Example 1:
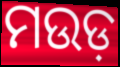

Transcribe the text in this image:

ମଉଡ଼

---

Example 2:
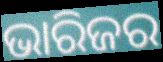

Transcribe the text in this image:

ଭାରିଜର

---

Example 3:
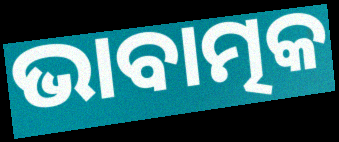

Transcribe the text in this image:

ଭାବାତ୍ମକ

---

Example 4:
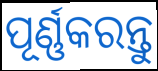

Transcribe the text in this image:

ପୂର୍ଣ୍ଣକରନ୍ତୁ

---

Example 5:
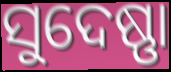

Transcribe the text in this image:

ସୁଦେଷ୍ଣା